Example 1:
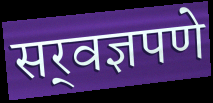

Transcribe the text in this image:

सर्वज्ञपणे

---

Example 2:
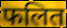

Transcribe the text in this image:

फलित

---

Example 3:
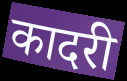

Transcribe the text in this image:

कादरी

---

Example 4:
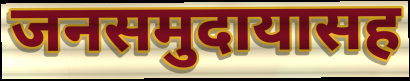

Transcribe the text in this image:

जनसमुदायासह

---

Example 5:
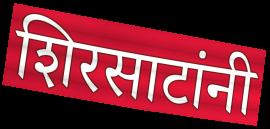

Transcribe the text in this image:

शिरसाटांनी